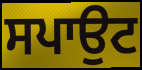
ਸਪਾਉਟ